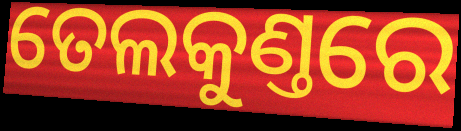
ତେଲକୁଣ୍ତରେ